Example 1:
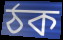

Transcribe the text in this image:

ঠক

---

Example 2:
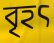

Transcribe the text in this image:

বৃহৎ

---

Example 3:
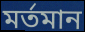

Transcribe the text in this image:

মর্তমান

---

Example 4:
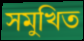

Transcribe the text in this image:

সমুখিত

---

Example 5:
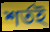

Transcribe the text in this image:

শর্তই